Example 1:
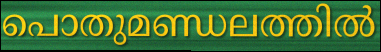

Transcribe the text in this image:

പൊതുമണ്ഡലത്തിൽ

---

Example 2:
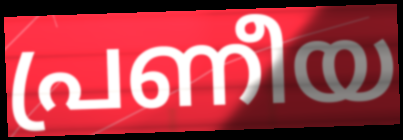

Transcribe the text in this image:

പ്രണീയ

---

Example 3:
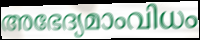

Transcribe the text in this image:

അഭേദ്യമാംവിധം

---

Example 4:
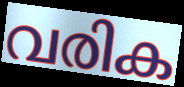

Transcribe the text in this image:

വരിക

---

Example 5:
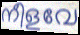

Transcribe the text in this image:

നീളവേ